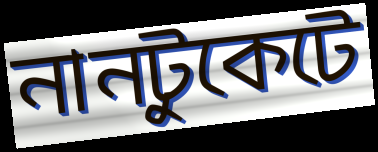
নানটুকেটে